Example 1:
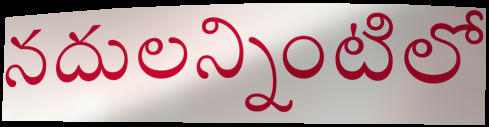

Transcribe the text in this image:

నదులన్నింటిలో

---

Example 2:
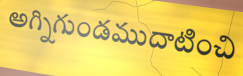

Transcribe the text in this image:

అగ్నిగుండముదాటించి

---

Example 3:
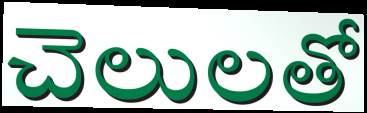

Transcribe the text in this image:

చెలులతో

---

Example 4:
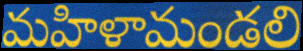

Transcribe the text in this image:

మహిళామండలి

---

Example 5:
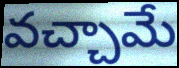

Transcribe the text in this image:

వచ్చామే